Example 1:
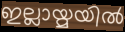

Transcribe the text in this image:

ഇല്ലായ്മയിൽ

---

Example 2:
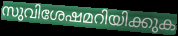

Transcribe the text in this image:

സുവിശേഷമറിയിക്കുക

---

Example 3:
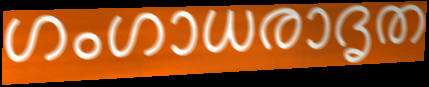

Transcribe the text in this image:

ഗംഗാധരാദൃത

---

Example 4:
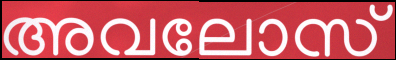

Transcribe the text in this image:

അവലോസ്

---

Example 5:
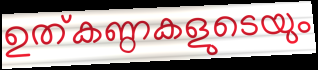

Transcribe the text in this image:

ഉത്കണ്ഠകളുടെയും